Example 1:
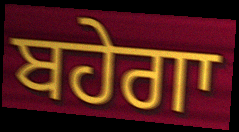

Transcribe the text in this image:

ਬਹੇਗਾ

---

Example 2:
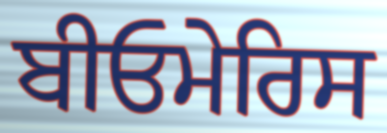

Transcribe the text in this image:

ਬੀਓਮੇਰਿਸ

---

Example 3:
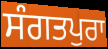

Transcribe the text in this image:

ਸੰਗਤਪੁਰਾ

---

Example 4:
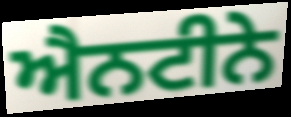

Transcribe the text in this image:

ਐਨਟੀਨੇ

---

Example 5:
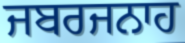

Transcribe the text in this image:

ਜਬਰਜਨਾਹ